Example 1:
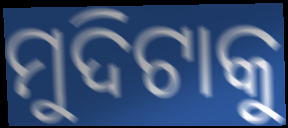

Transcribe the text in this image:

ମୁଦିଟାକୁ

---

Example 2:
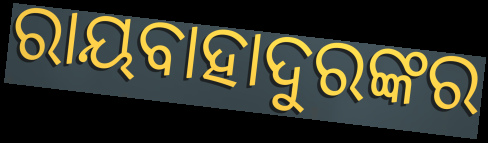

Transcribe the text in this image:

ରାୟବାହାଦୁରଙ୍କର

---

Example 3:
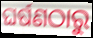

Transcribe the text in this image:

ଘର୍ଷଣଠାରୁ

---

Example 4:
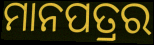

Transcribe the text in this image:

ମାନପତ୍ରର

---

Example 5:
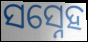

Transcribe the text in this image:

ସସ୍ନେହ